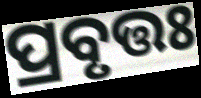
ପ୍ରବୃତ୍ତଃ